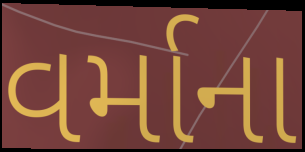
વર્માના